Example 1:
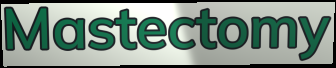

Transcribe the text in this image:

Mastectomy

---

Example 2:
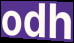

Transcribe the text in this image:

odh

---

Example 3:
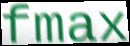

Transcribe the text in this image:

fmax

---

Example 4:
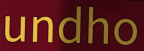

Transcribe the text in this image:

undho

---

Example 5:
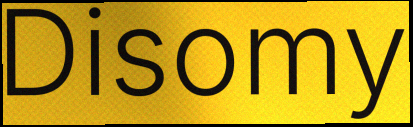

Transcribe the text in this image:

Disomy